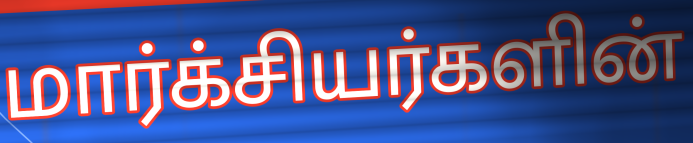
மார்க்சியர்களின்